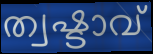
ത്വഷ്ടാവ്